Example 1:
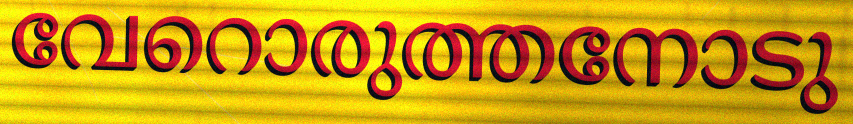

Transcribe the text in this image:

വേറൊരുത്തനോടു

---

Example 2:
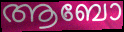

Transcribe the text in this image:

ആബോ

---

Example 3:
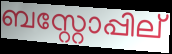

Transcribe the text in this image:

ബസ്റ്റോപ്പില്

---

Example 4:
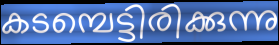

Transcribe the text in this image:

കടമ്പെട്ടിരിക്കുന്നു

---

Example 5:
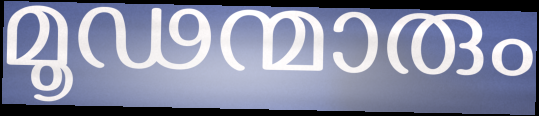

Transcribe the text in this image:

മൂഢന്മാരും